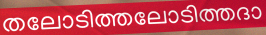
തലോടിത്തലോടിത്തദാ